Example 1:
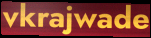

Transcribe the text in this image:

vkrajwade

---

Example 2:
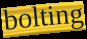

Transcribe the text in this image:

bolting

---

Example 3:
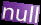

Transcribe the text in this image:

null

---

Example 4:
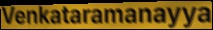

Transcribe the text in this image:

Venkataramanayya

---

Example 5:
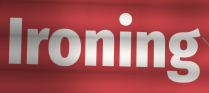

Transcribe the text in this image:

Ironing